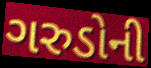
ગરુડોની